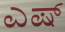
ಎಷ್